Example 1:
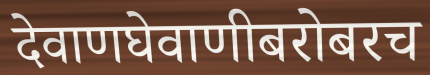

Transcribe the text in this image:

देवाणघेवाणीबरोबरच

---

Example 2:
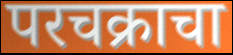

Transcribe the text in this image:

परचक्राचा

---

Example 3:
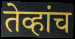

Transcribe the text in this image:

तेव्हांच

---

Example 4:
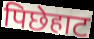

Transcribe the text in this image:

पिछेहाट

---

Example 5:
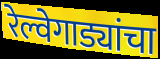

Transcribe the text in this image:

रेल्वेगाड्यांचा